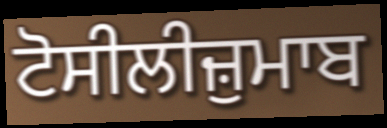
ਟੋਸੀਲੀਜ਼ੁਮਾਬ